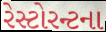
રેસ્ટોરન્ટના